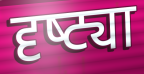
दृष्ट्या